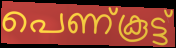
പെണ്കൂട്ട്